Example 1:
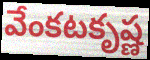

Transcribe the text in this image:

వేంకటకృష్ణ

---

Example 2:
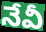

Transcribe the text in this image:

నేవీ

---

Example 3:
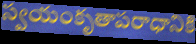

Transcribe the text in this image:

స్వయంకృతాపరాధానికి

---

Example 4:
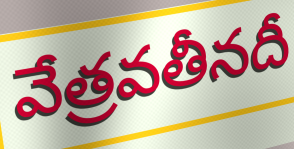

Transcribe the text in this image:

వేత్రవతీనదీ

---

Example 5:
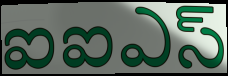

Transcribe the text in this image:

ఐఐఎస్